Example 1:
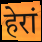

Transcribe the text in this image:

हेरां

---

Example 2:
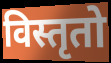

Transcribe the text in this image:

विस्तृतो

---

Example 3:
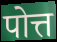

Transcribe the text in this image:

पोत्त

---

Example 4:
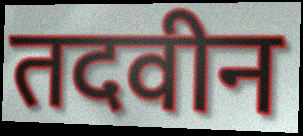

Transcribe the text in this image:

तदवीन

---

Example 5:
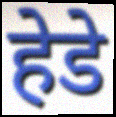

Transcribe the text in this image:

हेडे